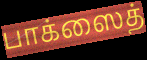
பாக்ஸைத்